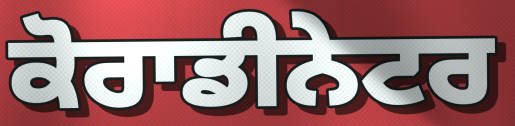
ਕੋਰਾਡੀਨੇਟਰ